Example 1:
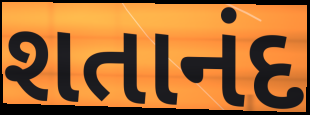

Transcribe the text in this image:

શતાનંદ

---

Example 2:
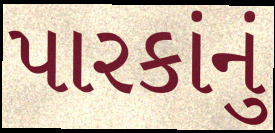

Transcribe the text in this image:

પારકાંનું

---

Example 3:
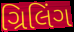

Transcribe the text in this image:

ગ્રિલિંગ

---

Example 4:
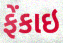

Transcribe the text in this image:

ફેંકાઇ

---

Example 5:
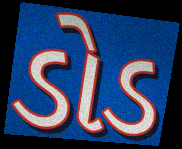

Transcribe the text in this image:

ડોડ